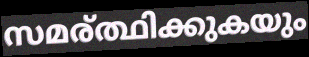
സമര്ത്ഥിക്കുകയും